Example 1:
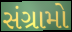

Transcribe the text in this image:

સંગ્રામો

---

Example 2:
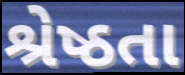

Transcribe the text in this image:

શ્રેષ્ઠતા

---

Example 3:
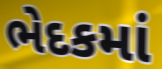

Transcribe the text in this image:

ભેદકમાં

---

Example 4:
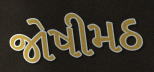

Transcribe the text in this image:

જોષીમઠ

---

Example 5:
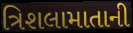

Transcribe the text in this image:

ત્રિશલામાતાની